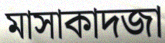
মাসাকাদজা